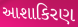
આશાકિરણ